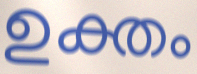
ഉക്തം